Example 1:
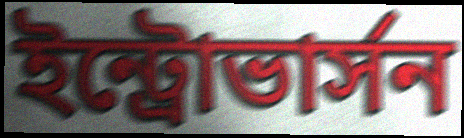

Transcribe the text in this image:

ইন্ট্রোভার্সন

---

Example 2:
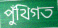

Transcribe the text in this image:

পুঁথিগত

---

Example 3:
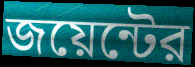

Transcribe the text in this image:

জয়েন্টের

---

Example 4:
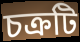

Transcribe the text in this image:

চক্রটি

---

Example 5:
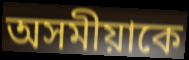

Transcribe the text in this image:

অসমীয়াকে